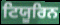
ਟਿਯੂਰਿਨ